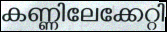
കണ്ണിലേക്കേറ്റി